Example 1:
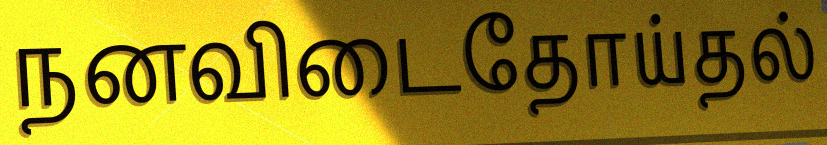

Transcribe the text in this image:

நனவிடைதோய்தல்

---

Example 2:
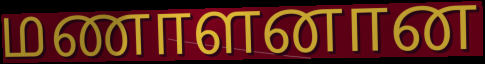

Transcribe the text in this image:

மணாளனான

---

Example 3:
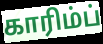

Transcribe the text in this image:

காரிம்ப்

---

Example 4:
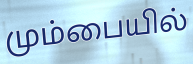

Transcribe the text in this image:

மும்பையில்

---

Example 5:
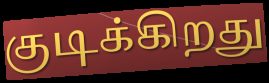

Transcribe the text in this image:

குடிக்கிறது